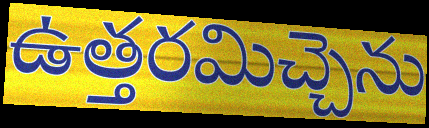
ఉత్తరమిచ్చెను